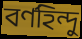
বৰ্ণহিন্দু